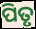
ପିତୃ